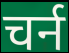
चर्न